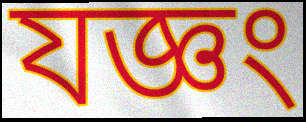
যজ্ঞং